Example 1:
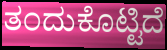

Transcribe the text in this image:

ತಂದುಕೊಟ್ಟಿದೆ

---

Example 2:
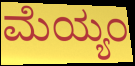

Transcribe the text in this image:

ಮೆಯ್ಯಂ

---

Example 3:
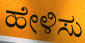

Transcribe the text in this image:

ಹೇಳಿಸು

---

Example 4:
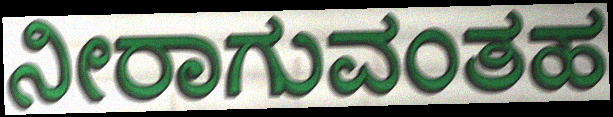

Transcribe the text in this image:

ನೀರಾಗುವಂತಹ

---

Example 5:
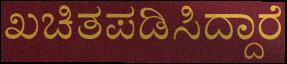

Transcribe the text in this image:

ಖಚಿತಪಡಿಸಿದ್ದಾರೆ